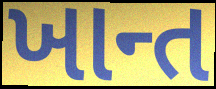
ખાન્ત